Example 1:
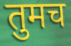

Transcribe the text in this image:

तुमच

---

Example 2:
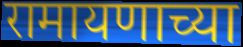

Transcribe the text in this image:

रामायणाच्या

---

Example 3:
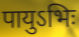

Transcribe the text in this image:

पायुऽभिः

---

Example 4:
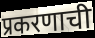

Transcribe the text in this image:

प्रकरणाची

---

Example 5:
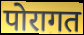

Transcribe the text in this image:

पोरागत